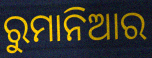
ରୁମାନିଆର